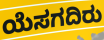
ಯೆಸಗದಿರು